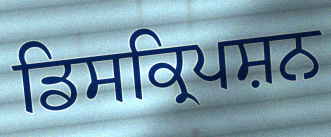
ਡਿਸਕ੍ਰਿਪਸ਼ਨ